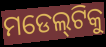
ମଡେଲ୍‌ଟିକୁ